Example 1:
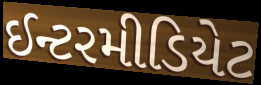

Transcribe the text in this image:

ઈન્ટરમીડિયેટ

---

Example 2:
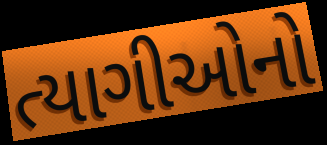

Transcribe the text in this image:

ત્યાગીઓનો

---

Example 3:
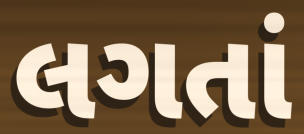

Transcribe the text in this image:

લગતાં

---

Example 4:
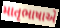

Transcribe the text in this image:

માતૃભાષાએ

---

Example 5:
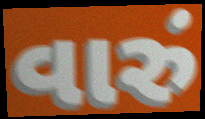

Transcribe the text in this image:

વારું